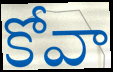
కోవా